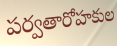
పర్వతారోహకుల